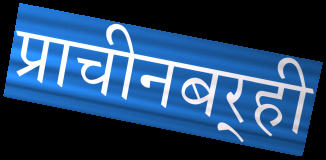
प्राचीनबर्ही